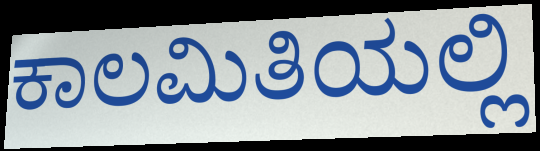
ಕಾಲಮಿತಿಯಲ್ಲಿ